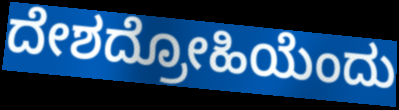
ದೇಶದ್ರೋಹಿಯೆಂದು